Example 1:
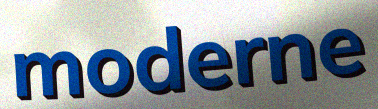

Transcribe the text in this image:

moderne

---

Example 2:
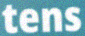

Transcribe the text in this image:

tens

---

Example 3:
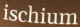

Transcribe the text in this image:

ischium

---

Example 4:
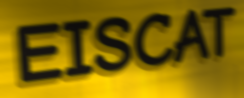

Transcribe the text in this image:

EISCAT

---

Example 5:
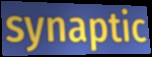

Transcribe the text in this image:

synaptic